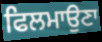
ਫਿਲਮਾਉਣਾ